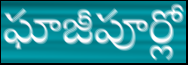
ఘాజీపూర్లో